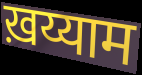
ख़य्याम